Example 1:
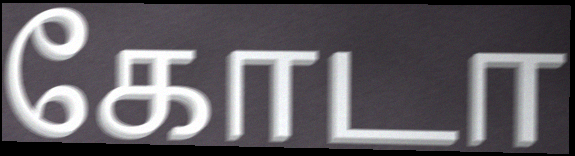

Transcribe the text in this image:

கோடா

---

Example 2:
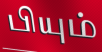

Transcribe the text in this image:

பியும்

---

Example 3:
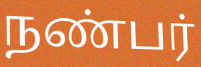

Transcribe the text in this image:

நண்பர்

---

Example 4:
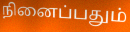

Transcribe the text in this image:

நினைப்பதும்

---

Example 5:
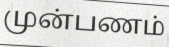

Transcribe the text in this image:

முன்பணம்